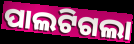
ପାଲଟିଗଲା